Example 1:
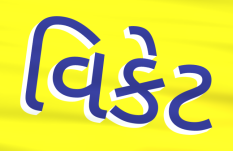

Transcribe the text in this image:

વિકેટ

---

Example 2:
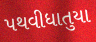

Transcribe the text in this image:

પથવીધાતુયા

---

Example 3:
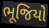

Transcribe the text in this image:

ભૂજિયો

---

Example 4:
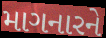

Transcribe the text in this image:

માગનારને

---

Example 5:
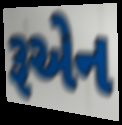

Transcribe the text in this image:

રૂએન